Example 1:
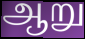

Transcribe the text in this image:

ஆறு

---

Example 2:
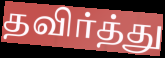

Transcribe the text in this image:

தவிர்த்து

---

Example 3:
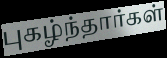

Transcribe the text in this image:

புகழ்ந்தார்கள்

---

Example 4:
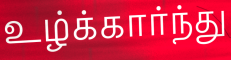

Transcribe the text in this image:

உழ்க்கார்ந்து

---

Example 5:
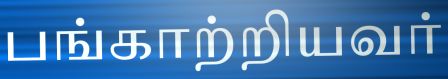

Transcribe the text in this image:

பங்காற்றியவர்